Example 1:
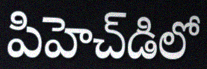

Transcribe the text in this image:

పిహెచ్‌డిలో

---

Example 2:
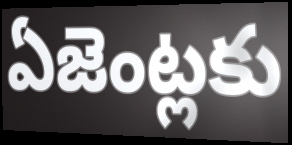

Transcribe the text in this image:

ఏజెంట్లకు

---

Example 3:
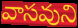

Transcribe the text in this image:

వాసవుని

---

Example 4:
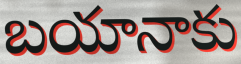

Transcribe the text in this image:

బయానాకు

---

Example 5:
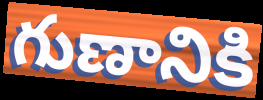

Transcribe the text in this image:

గుణానికి